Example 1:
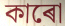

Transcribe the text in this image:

কাৰো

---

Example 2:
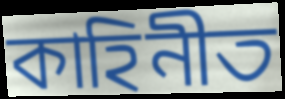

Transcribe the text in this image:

কাহিনীত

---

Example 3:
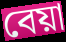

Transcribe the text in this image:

বেয়া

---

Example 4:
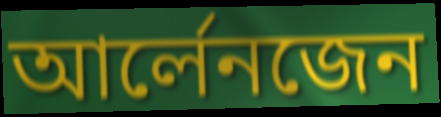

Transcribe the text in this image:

আৰ্লেনজেন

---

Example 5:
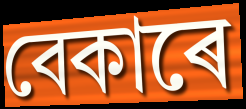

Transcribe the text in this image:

বেকাৰে